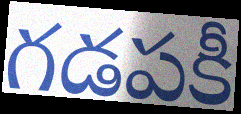
గడపకీ